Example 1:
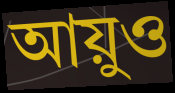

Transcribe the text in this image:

আয়ুও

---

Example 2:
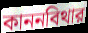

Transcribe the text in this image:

কাননবিথার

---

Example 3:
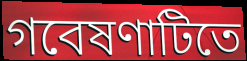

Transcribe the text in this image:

গবেষণাটিতে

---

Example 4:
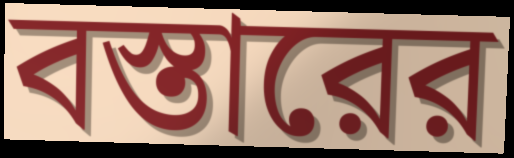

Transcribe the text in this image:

বস্তারের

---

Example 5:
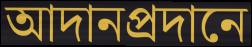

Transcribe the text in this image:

আদানপ্রদানে